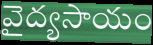
వైద్యసాయం